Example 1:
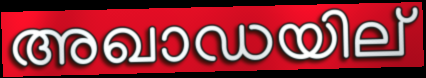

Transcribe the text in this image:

അഖാഡയില്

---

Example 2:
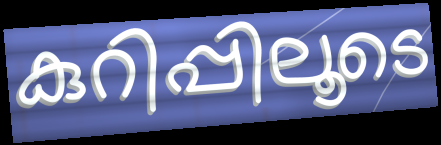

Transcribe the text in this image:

കുറിപ്പിലൂടെ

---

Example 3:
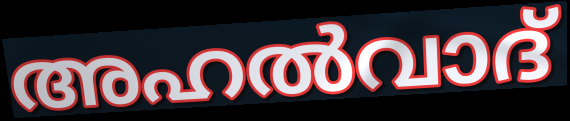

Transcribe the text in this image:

അഹൽവാദ്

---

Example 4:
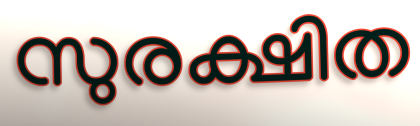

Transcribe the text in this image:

സുരക്ഷിത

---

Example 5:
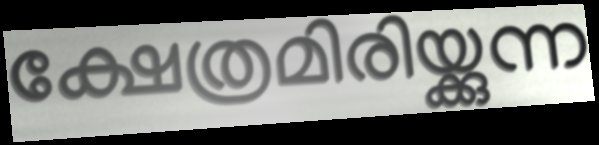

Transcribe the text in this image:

ക്ഷേത്രമിരിയ്ക്കുന്ന